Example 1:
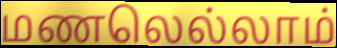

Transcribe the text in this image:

மணலெல்லாம்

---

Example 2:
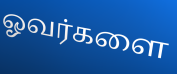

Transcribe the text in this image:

ஓவர்களை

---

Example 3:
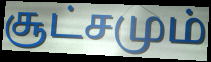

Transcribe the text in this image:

சூட்சமும்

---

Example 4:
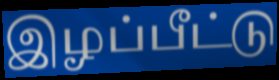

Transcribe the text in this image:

இழப்பீட்டு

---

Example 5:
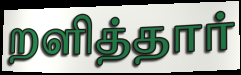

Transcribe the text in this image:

றளித்தார்